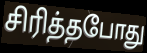
சிரித்தபோது